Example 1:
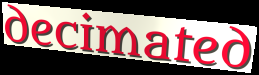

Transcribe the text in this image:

decimated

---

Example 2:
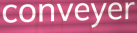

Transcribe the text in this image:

conveyer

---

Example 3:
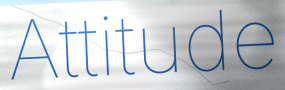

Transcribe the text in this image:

Attitude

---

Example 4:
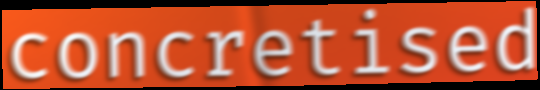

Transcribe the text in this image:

concretised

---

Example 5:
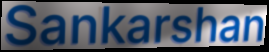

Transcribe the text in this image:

Sankarshan